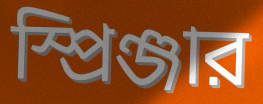
স্প্রিঞ্জার